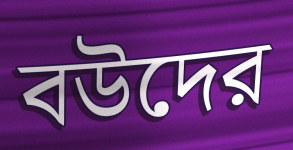
বউদের